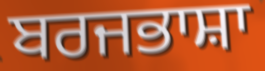
ਬਰਜਭਾਸ਼ਾ